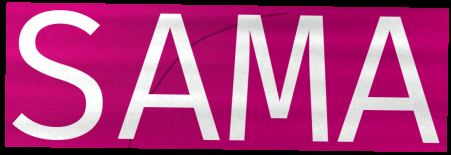
SAMA